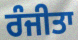
ਰੰਜੀਤਾ